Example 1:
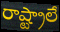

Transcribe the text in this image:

రాష్ట్రాలే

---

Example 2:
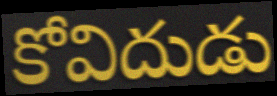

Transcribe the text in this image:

కోవిదుడు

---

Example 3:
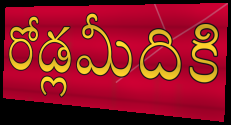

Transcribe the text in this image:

రోడ్లమీదికి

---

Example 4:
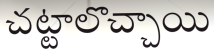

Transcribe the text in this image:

చట్టాలొచ్చాయి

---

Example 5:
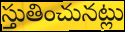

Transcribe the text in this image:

స్తుతించునట్లు